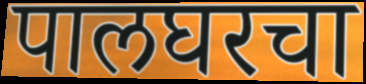
पालघरचा